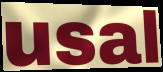
usal